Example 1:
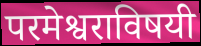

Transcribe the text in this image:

परमेश्वराविषयी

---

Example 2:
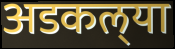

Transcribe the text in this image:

अडकल्या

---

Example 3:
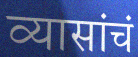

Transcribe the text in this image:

व्यासांचं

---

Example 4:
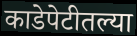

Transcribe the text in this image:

काडेपेटीतल्या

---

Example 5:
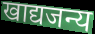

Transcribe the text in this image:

खाद्यजन्य